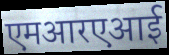
एमआरएआई